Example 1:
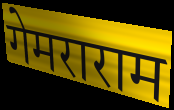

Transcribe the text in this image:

गेमराराम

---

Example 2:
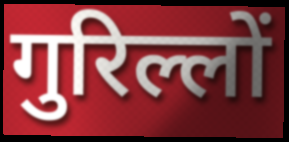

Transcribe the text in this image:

गुरिल्लों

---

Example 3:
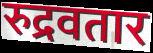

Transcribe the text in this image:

रुद्रवतार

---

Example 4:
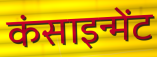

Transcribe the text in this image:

कंसाइन्मेंट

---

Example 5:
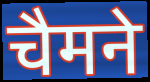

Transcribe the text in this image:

चैमने